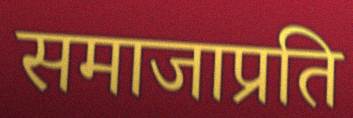
समाजाप्रति